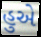
હુએ